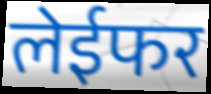
लेईफर